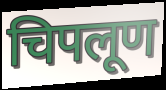
चिपलूण